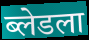
ब्लेडला